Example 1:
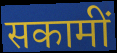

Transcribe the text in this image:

सकामीं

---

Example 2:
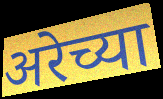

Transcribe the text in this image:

अरेच्या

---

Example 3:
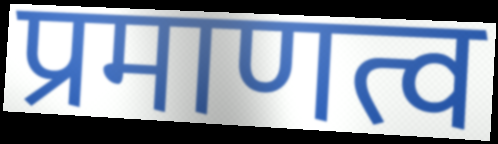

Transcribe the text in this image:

प्रमाणत्व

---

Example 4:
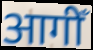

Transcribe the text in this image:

आगीँ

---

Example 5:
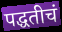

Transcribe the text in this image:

पद्धतीचं